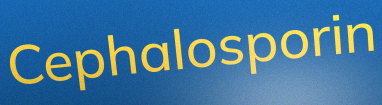
Cephalosporin